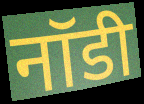
नॉडी